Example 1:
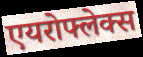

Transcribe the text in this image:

एयरोफ्लेक्स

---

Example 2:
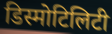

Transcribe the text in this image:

डिस्मोटिलिटी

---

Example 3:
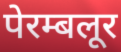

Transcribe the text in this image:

पेरम्बलूर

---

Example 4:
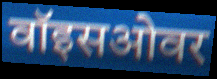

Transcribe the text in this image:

वॉइसओवर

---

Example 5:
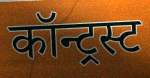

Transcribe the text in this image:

कॉन्ट्रस्ट